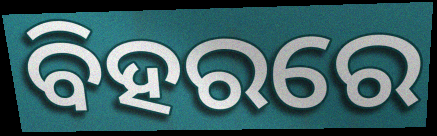
ବିହରରେ